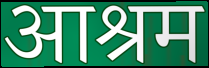
आश्रम